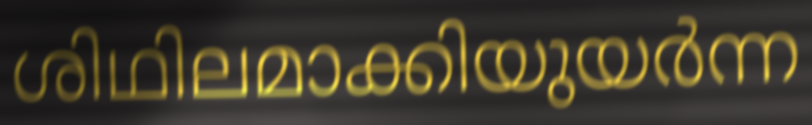
ശിഥിലമാക്കിയുയർന്ന